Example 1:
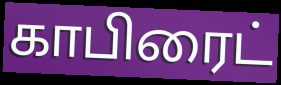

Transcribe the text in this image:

காபிரைட்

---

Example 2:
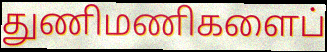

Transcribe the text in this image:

துணிமணிகளைப்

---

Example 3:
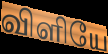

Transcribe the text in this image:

விளியே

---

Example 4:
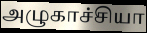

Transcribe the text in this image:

அழுகாச்சியா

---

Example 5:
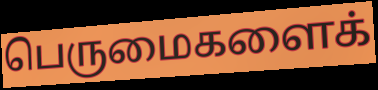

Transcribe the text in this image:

பெருமைகளைக்